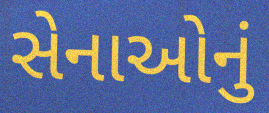
સેનાઓનું